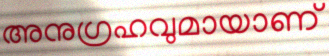
അനുഗ്രഹവുമായാണ്